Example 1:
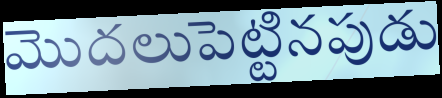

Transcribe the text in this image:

మొదలుపెట్టినపుడు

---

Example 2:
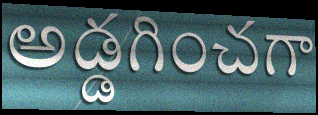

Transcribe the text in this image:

అడ్డగించగా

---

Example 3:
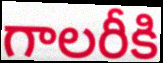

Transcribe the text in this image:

గాలరీకి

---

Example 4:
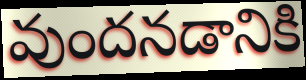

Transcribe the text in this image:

వుందనడానికి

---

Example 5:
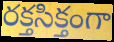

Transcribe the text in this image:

రక్తసిక్తంగా